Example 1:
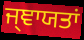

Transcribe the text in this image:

ਜ੍ਞਾਯਤਾਂ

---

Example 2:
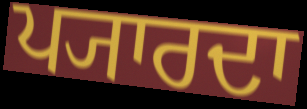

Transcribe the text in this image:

ਪ੍ਯਾਰਦਾ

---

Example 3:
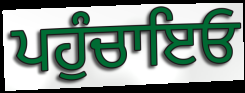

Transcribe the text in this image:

ਪਹੁੰਚਾਇਓ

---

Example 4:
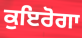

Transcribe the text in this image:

ਕੁਇਰੋਗਾ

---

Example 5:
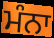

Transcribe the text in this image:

ਮੰਨਾ